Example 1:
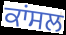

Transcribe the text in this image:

ਕਾਂਸਲ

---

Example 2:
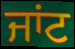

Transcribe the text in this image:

ਜਾਂਟ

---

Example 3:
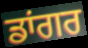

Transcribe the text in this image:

ਡਾਂਗਰ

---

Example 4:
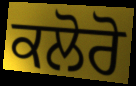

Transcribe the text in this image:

ਕਲੋਰੋ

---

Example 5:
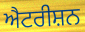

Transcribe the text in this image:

ਐਟਰੀਸ਼ਨ